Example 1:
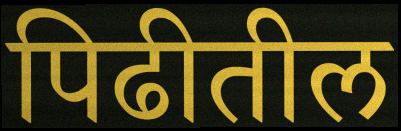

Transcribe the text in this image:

पिढीतील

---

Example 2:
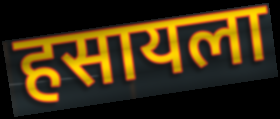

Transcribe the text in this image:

हसायला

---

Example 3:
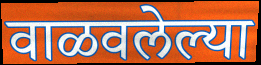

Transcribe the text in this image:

वाळवलेल्या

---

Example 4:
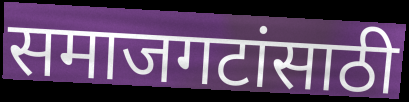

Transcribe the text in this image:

समाजगटांसाठी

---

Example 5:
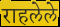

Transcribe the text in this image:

राहलेले